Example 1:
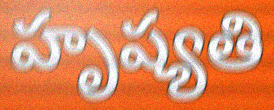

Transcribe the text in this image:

హృష్యతి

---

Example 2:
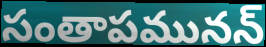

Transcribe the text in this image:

సంతాపమునన్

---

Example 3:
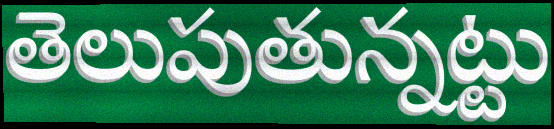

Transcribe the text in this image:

తెలుపుతున్నట్టు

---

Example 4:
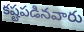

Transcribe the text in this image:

కష్టపడినవారు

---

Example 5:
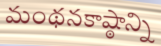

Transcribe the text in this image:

మంథనకాష్ఠాన్ని